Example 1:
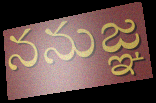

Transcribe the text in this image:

ననుజ్ఞ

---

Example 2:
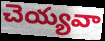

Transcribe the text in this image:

చెయ్యవా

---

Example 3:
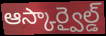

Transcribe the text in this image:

ఆస్కార్వైల్డ్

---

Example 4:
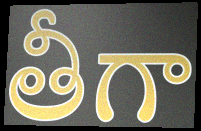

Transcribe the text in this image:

తీగా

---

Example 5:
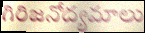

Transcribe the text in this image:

గిరిజనోద్యమాలు